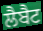
ਲੈਬੈਟ